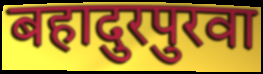
बहादुरपुरवा